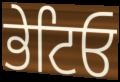
ਭੇਟਿਓ